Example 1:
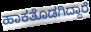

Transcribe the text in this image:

ಹಾಕತೊಡಗಿದ್ದಾರೆ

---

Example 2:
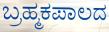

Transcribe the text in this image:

ಬ್ರಹ್ಮಕಪಾಲದ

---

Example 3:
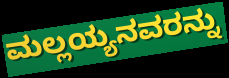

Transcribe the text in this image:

ಮಲ್ಲಯ್ಯನವರನ್ನು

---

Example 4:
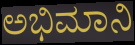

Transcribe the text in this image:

ಅಭಿಮಾನಿ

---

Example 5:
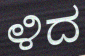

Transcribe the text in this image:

ಳಿದ